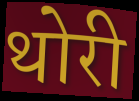
थोरी